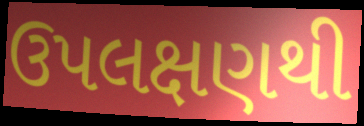
ઉપલક્ષણથી